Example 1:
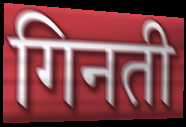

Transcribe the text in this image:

गिनती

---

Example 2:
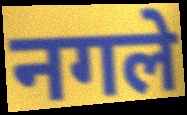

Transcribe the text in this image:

नगले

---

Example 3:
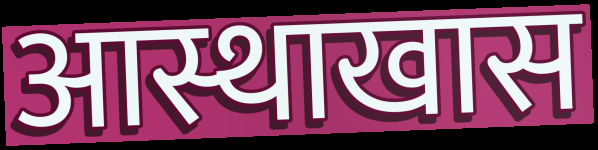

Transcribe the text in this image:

आस्थाखास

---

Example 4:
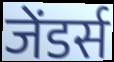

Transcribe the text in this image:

जेंडर्स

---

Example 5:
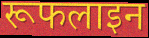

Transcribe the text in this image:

रूफलाइन